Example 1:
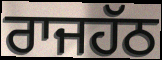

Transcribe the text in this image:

ਰਾਜਹੱਠ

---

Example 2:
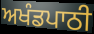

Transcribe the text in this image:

ਅਖੰਡਪਾਠੀ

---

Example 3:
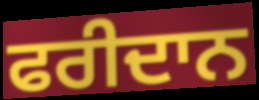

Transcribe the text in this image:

ਫਰੀਦਾਨ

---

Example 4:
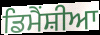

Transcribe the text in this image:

ਡਿਮੈਂਸ਼ੀਆ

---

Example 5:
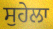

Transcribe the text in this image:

ਸੁਹੇਲਾ